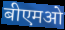
बीएमओ